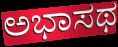
ಅಭಾಸಥ